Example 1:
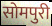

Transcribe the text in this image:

सोमपुरी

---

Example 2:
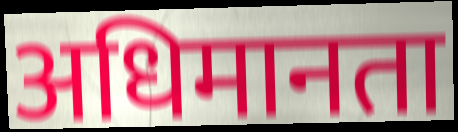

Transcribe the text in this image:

अधिमानता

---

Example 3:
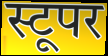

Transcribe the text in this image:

स्टूपर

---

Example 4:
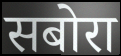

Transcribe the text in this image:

सबोरा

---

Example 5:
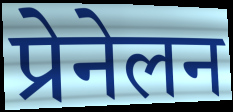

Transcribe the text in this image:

प्रेनेलन